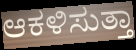
ಆಕಳಿಸುತ್ತಾ